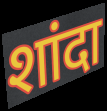
शांदा